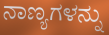
ನಾಣ್ಯಗಳನ್ನು